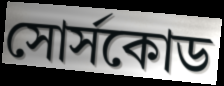
সোর্সকোড